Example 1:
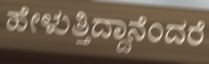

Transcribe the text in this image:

ಹೇಳುತ್ತಿದ್ದಾನೆಂದರೆ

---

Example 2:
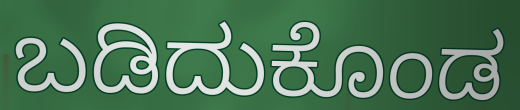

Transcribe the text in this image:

ಬಡಿದುಕೊಂಡ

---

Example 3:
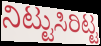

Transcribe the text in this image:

ನಿಟ್ಟುಸಿರಿಟ್ಟ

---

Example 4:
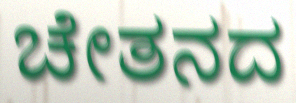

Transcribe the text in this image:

ಚೇತನದ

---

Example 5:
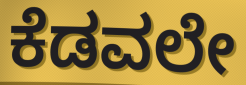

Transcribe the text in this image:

ಕೆಡವಲೇ